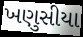
ખણુસીયા